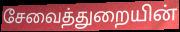
சேவைத்துறையின்